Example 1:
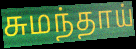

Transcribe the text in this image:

சுமந்தாய்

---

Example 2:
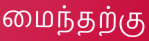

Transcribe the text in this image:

மைந்தற்கு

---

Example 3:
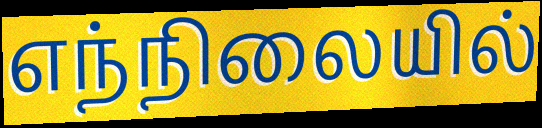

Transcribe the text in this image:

எந்நிலையில்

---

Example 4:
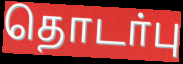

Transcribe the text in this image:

தொடர்பு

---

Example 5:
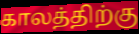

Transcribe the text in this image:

காலத்திற்கு